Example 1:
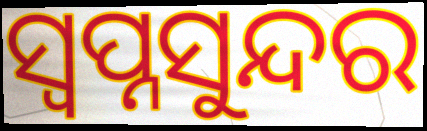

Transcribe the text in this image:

ସ୍ୱପ୍ନସୁନ୍ଦର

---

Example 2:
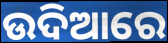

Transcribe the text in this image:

ଉଦିଆରେ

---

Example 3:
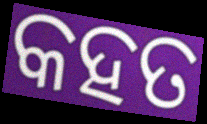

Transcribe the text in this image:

କହତ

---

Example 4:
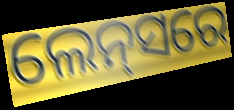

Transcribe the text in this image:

ଲେନ୍‌ସରେ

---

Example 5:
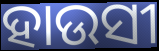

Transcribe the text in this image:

ହାଉସୀ